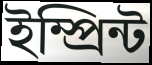
ইম্প্ৰিন্ট